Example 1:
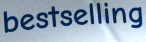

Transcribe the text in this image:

bestselling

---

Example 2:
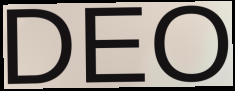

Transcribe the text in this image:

DEO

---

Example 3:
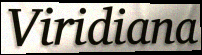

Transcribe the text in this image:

Viridiana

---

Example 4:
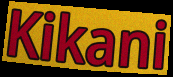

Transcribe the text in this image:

Kikani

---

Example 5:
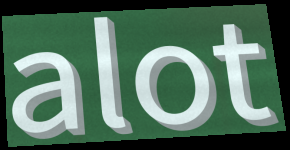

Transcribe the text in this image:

alot